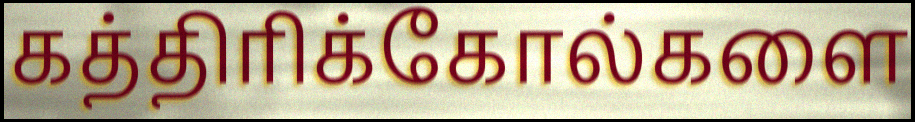
கத்திரிக்கோல்களை